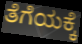
ತೆಗೆಯಕ್ಕೆ